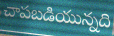
చాపబడియున్నది